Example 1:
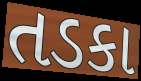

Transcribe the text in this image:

તડકા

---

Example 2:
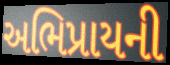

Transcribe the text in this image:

અભિપ્રાયની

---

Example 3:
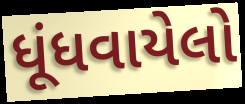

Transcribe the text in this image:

ધૂંધવાયેલો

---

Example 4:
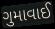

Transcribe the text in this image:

ગુમાવાઈ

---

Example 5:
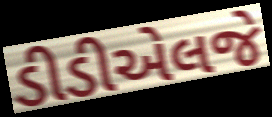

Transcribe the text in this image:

ડીડીએલજે